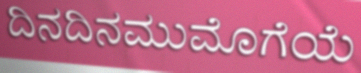
ದಿನದಿನಮುಮೊಗೆಯೆ